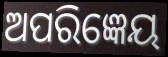
ଅପରିଜ୍ଞେୟ